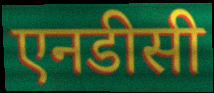
एनडीसी